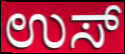
ಉಸ್